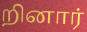
றினார்